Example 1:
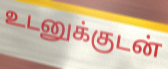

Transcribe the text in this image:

உடனுக்குடன்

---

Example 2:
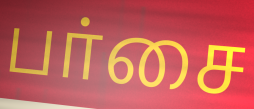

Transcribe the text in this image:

பர்சை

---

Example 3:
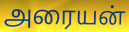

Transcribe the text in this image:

அரையன்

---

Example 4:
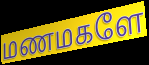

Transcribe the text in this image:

மணமகளே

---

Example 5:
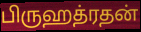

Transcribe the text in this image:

பிருஹத்ரதன்